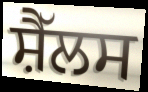
ਸ਼ੈੱਲਸ